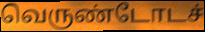
வெருண்டோடச்